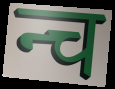
न्च